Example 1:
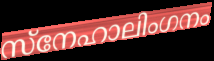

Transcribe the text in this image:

സ്നേഹാലിംഗനം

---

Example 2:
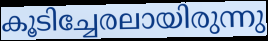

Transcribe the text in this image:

കൂടിച്ചേരലായിരുന്നു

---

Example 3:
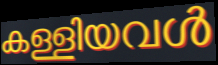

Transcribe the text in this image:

കള്ളിയവൾ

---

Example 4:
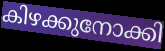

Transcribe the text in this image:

കിഴക്കുനോക്കി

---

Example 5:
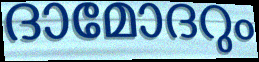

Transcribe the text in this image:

ദാമോദറും